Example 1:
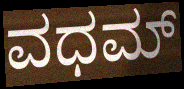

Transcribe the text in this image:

ವಧಮ್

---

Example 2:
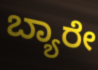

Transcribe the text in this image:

ಬ್ಯಾರೇ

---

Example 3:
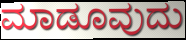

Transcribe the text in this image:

ಮಾಡೂವುದು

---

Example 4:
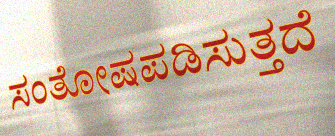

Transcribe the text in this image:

ಸಂತೋಷಪಡಿಸುತ್ತದೆ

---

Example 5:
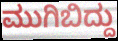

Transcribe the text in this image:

ಮುಗಿಬಿದ್ದು